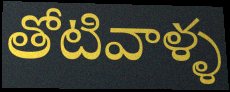
తోటివాళ్ళ